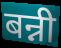
बन्नी